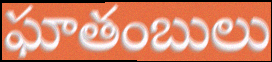
ఘాతంబులు